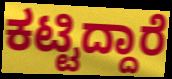
ಕಟ್ಟಿದ್ದಾರೆ